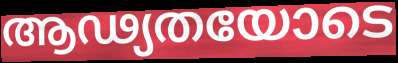
ആഢ്യതയോടെ